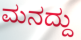
ಮನದ್ದು